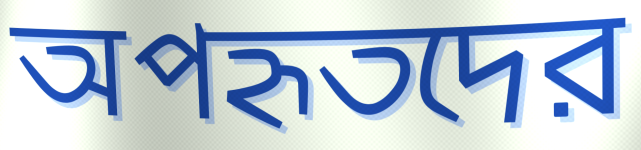
অপহৃতদের